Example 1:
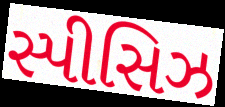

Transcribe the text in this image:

સ્પીસિઝ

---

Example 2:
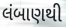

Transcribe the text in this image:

લંબાણથી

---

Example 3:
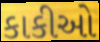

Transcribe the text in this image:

કાકીઓ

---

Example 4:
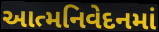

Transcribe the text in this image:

આત્મનિવેદનમાં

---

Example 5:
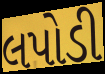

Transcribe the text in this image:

લપોડી